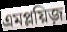
এমপ্লয়িজ়